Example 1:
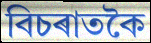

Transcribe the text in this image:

বিচৰাতকৈ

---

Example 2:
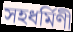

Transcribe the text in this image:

সহধৰ্মিণী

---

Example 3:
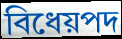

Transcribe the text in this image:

বিধেয়পদ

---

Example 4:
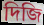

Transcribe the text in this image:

দিজি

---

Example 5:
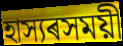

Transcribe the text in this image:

হাস্যৰসময়ী